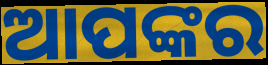
ଆପଙ୍କର